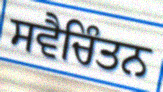
ਸਵੈਚਿੰਤਨ